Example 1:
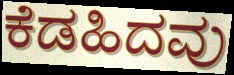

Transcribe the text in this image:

ಕೆಡಹಿದವು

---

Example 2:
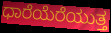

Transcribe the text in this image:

ಧಾರೆಯೆರೆಯುತ್ತ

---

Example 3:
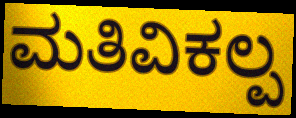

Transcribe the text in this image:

ಮತಿವಿಕಲ್ಪ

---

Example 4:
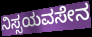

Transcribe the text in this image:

ನಿಸ್ಸಯವಸೇನ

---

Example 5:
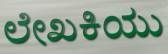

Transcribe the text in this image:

ಲೇಖಕಿಯು